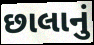
છાલાનું